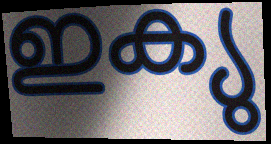
ഇക്യു